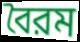
বৈরম